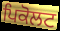
ਪਿਕੋਲਟ